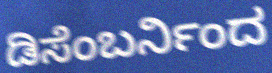
ಡಿಸೆಂಬರ್ನಿಂದ